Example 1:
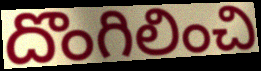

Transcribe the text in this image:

దొంగిలించి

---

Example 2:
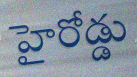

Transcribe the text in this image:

హైరోడ్డు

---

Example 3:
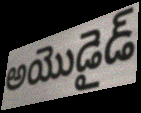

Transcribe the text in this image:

అయొడైడ్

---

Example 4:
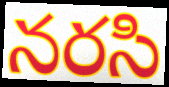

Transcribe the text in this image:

నరసి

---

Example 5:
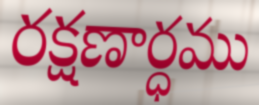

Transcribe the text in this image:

రక్షణార్ధము